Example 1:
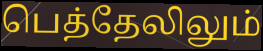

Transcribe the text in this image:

பெத்தேலிலும்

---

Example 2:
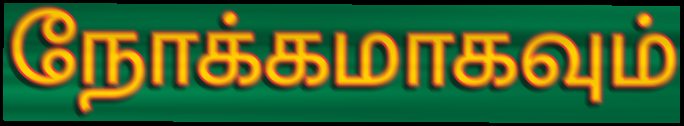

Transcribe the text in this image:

நோக்கமாகவும்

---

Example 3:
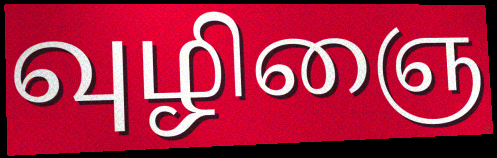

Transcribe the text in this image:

வுழிஞை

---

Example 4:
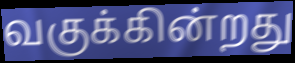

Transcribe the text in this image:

வகுக்கின்றது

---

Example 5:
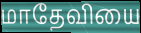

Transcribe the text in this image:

மாதேவியை